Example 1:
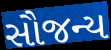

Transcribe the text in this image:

સૌજન્ય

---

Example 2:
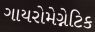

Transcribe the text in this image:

ગાયરોમેગ્નેટિક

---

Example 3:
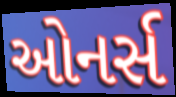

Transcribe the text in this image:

ઓનર્સ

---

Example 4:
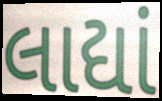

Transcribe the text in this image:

લાદ્યાં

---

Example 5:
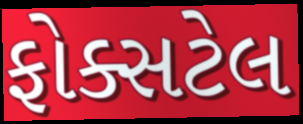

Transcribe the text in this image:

ફોક્સટેલ